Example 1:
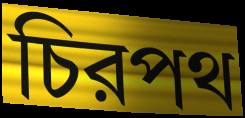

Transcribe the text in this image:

চিরপথ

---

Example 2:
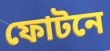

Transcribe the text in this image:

ফোটনে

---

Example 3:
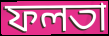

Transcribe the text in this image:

ফলতা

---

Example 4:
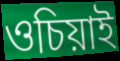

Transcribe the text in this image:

ওচিয়াই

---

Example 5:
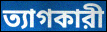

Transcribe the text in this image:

ত্যাগকারী